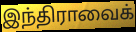
இந்திராவைக்